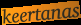
keertanas